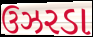
ઉઝરડા